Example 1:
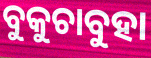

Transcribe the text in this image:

ବୁକୁଚାବୁହା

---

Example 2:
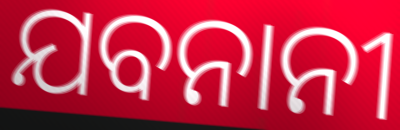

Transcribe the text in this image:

ଯବନାନୀ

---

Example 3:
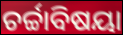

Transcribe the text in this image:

ଚର୍ଚ୍ଚାବିଷୟା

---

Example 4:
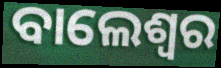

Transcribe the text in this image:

ବାଲେଶ୍ବର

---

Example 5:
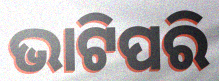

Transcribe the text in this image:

ଭାଟିପରି